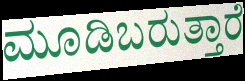
ಮೂಡಿಬರುತ್ತಾರೆ